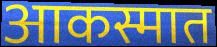
आकस्मात